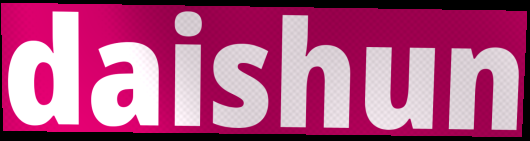
daishun